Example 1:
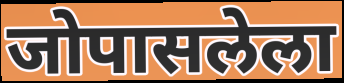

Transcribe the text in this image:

जोपासलेला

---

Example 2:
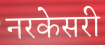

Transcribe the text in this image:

नरकेसरी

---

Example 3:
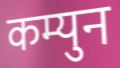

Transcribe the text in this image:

कम्युन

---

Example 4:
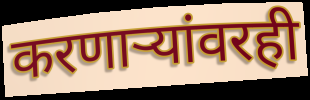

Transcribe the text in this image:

करणाऱ्यांवरही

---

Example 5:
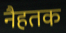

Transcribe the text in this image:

नैहतक